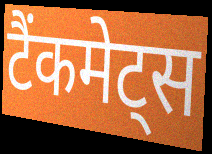
टैंकमेट्स